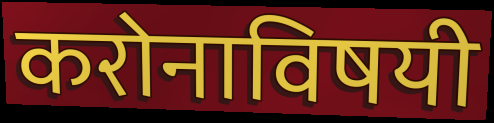
करोनाविषयी